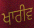
ਖਾਰੀਵ